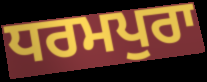
ਧਰਮਪੁਰਾ